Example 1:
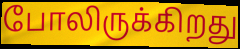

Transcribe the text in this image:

போலிருக்கிறது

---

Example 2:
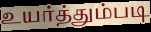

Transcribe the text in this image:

உயர்த்தும்படி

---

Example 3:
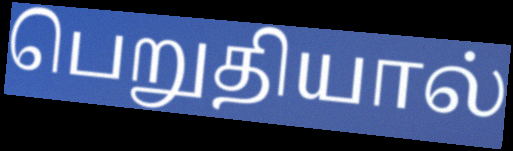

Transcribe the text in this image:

பெறுதியால்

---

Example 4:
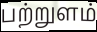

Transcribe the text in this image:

பற்றுளம்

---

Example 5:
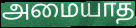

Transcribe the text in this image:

அமையாத